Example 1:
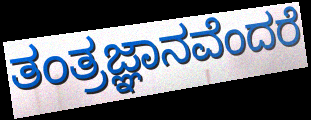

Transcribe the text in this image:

ತಂತ್ರಜ್ಞಾನವೆಂದರೆ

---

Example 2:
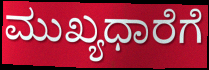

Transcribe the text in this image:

ಮುಖ್ಯಧಾರೆಗೆ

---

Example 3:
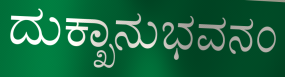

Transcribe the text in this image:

ದುಕ್ಖಾನುಭವನಂ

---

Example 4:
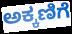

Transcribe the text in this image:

ಅಕ್ಕಣಿಗೆ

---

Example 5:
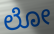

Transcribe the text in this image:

ಲೋ